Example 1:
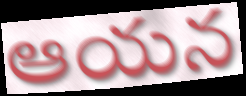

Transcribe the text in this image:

ఆయన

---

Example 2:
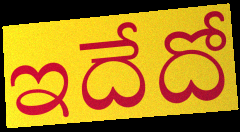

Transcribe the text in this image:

ఇదేదో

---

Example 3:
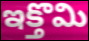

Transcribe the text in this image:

ఇక్తొమి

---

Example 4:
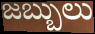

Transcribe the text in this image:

జబ్బులు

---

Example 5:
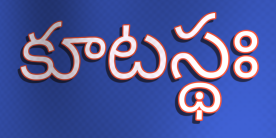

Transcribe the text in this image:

కూటస్థః